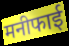
मनीफाई